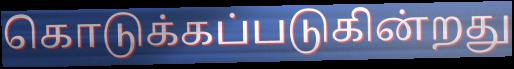
கொடுக்கப்படுகின்றது